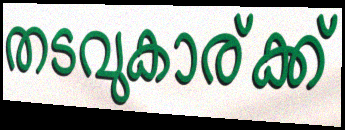
തടവുകാര്ക്ക്